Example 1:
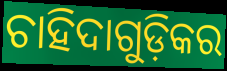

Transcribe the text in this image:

ଚାହିଦାଗୁଡ଼ିକର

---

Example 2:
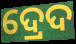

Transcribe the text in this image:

ଦ୍ରେଦ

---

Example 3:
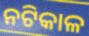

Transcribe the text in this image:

ନଟିକାଳ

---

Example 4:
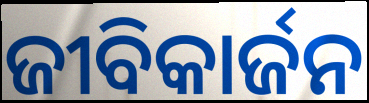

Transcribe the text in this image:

ଜୀବିକାର୍ଜନ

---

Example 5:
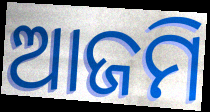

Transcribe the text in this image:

ଆଜମି